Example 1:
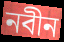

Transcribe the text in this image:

নবীন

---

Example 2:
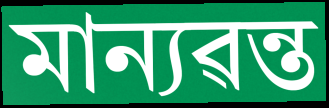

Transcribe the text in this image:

মান্যৱন্ত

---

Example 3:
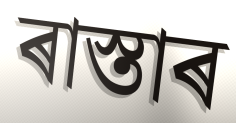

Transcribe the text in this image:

ৰাস্তাৰ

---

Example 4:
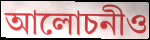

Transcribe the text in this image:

আলোচনীও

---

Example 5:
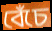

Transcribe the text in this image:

বেঁচে